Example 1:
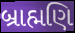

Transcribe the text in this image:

બ્રાહ્મણિ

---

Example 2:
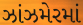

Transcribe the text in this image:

ઝાંઝમેરમાં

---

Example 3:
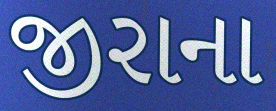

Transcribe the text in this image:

જીરાના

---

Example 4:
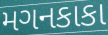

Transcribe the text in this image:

મગનકાકા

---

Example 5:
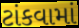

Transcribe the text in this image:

ટાંકવામાં